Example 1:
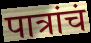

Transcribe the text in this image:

पात्रांचं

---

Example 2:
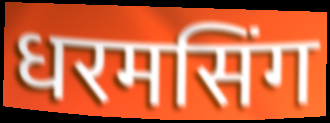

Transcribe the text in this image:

धरमसिंग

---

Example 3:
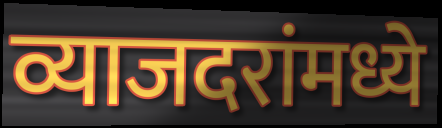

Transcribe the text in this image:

व्याजदरांमध्ये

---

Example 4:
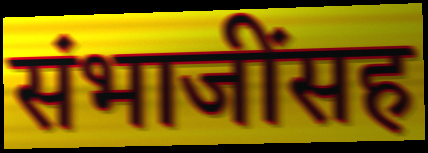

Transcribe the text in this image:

संभाजींसह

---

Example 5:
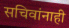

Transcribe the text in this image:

सचिवांनाही